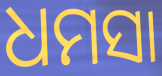
ଧମସା